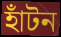
হাঁটন